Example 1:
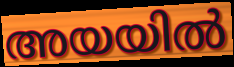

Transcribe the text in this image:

അയയിൽ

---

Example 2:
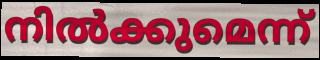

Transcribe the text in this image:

നിൽക്കുമെന്ന്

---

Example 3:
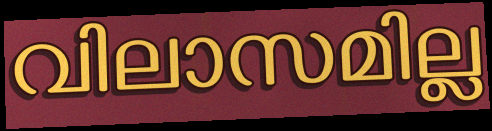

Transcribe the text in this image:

വിലാസമില്ല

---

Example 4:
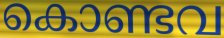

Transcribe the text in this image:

കൊണ്ടവ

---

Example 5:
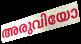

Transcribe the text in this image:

അരുവിയോ